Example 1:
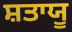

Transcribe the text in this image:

ਸ਼ਤਾਯੂ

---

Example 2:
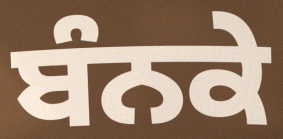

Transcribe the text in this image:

ਬੰਨਕੇ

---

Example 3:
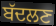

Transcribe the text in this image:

ਬੱਦਲਣ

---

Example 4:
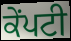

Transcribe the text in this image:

ਕੇਂਪਟੀ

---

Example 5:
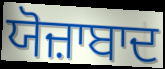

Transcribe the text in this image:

ਯੋਜ਼ਾਬਾਦ